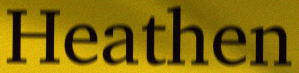
Heathen